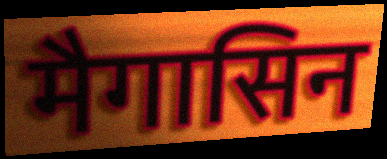
मैगासिन